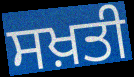
ਸਖ਼ਤੀ